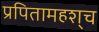
प्रपितामहश्च